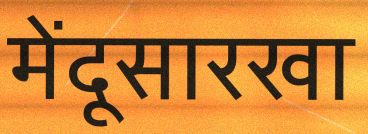
मेंदूसारखा